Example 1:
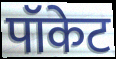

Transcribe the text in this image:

पॉकेट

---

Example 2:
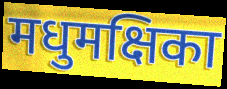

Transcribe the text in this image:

मधुमक्षिका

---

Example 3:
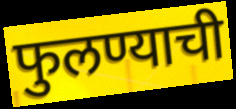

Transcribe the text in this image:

फुलण्याची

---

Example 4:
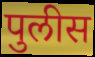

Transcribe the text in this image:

पुलीस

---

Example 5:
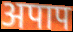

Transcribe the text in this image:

अपाप